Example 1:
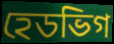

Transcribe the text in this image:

হেডভিগ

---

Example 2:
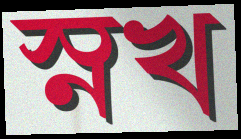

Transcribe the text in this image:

স্নখ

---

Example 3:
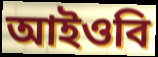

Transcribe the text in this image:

আইওবি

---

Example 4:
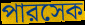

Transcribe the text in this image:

পারসেক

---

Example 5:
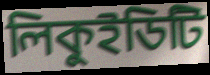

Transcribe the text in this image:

লিকুইডিটি